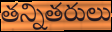
తన్నితరులు